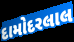
દામોદરલાલ